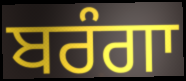
ਬਰੰਗਾ